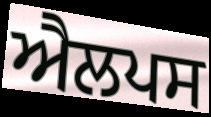
ਐਲਪਸ